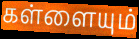
கள்ளையும்